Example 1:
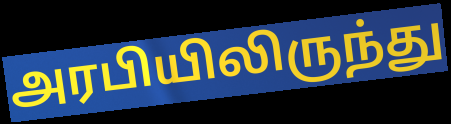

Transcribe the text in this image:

அரபியிலிருந்து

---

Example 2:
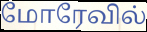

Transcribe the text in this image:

மோரேவில்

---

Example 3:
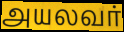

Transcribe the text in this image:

அயலவர்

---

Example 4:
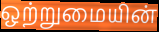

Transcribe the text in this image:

ஒற்றுமையின்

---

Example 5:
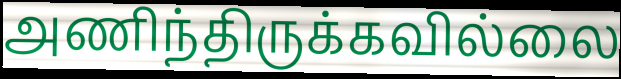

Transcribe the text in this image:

அணிந்திருக்கவில்லை